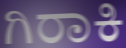
ಗಿರಾಕಿ